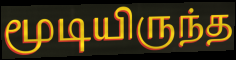
மூடியிருந்த